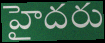
హైదరు